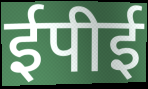
ईपीई